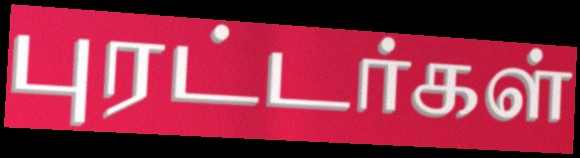
புரட்டர்கள்